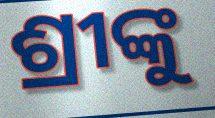
ଶ୍ରୀଙ୍କୁ